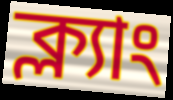
ক্ল্যাং